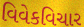
વિવેકવિચાર